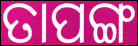
ତାପଙ୍ଗ